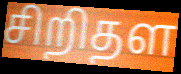
சிறிதள